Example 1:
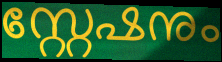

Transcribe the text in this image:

സ്റ്റേഷനും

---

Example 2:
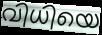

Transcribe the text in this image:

വിധിയെ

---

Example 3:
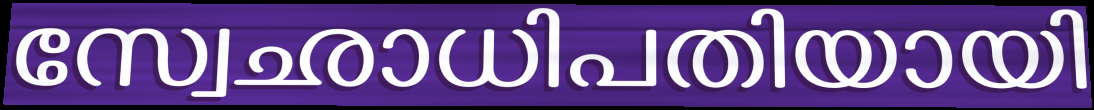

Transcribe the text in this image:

സ്വേഛാധിപതിയായി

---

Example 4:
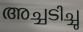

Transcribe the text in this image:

അച്ചടിച്ചു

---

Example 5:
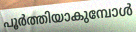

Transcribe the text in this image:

പൂർത്തിയാകുമ്പോൾ